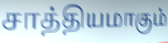
சாத்தியமாகும்